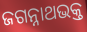
ଜଗନ୍ନାଥଭକ୍ତ